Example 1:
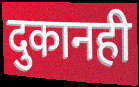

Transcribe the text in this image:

दुकानही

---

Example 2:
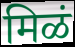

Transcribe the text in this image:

मिळं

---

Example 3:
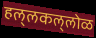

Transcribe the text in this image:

हल्लकल्लोळ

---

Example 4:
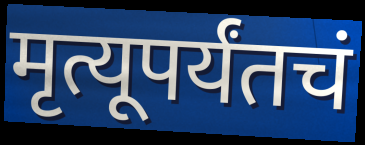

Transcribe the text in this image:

मृत्यूपर्यंतचं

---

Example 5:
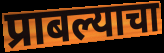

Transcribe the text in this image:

प्राबल्याचा